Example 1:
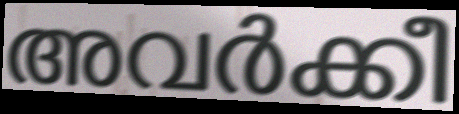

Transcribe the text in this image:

അവർക്കീ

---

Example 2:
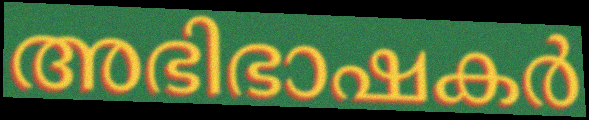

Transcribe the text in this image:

അഭിഭാഷകർ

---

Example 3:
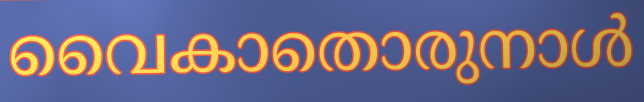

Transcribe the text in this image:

വൈകാതൊരുനാൾ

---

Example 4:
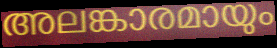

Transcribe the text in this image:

അലങ്കാരമായും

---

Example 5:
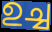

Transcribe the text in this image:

ഉച്ച